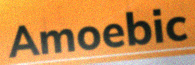
Amoebic